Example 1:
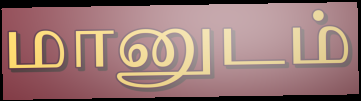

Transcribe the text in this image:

மானுடம்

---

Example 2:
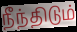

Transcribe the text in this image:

நீந்திடும்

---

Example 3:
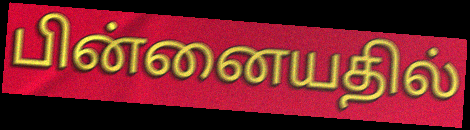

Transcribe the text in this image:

பின்னையதில்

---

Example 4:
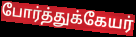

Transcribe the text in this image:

போர்த்துக்கேயர்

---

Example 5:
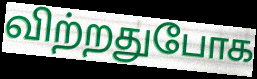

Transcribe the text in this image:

விற்றதுபோக